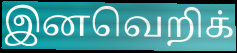
இனவெறிக்